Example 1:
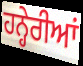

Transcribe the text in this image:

ਹਨ੍ਹੇਰੀਆਂ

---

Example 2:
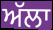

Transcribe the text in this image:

ਅੱਲਾ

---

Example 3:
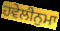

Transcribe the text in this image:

ਹਵੇਲੀਨੁਮਾ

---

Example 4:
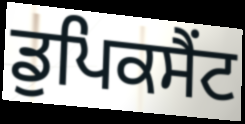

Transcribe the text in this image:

ਡੁਪਿਕਸੈਂਟ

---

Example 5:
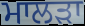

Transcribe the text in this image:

ਮਾਲੜਾ